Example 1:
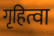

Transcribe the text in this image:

गृहित्वा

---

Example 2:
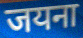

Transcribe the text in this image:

जयना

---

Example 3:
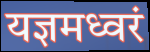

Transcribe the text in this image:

यज्ञमध्वरं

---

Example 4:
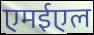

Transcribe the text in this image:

एमईएल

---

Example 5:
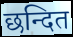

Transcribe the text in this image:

छन्दित